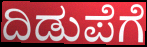
ದಿಡುಪೆಗೆ